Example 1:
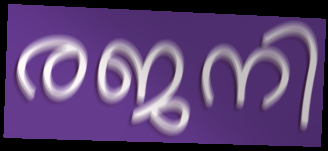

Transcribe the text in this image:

രജനി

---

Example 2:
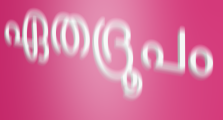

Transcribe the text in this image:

ഏതദ്രൂപം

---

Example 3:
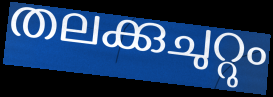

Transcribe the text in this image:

തലക്കുചുറ്റും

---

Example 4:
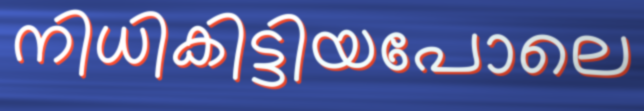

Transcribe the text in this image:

നിധികിട്ടിയപോലെ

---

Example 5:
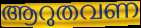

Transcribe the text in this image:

ആറുതവണ